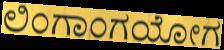
ಲಿಂಗಾಂಗಯೋಗ